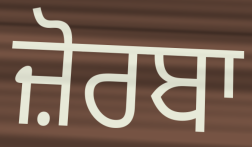
ਜ਼ੋਰਬਾ